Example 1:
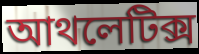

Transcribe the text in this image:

আথলেটিক্স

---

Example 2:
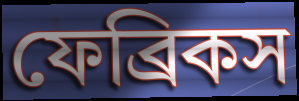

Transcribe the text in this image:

ফেব্রিকস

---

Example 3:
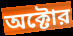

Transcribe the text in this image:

অক্টোর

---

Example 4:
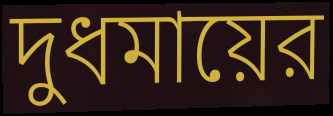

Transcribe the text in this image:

দুধমায়ের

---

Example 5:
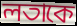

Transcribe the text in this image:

লতাকে